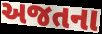
અજતના